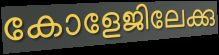
കോളേജിലേക്കു